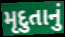
મૃદુતાનું